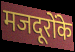
मजदूरोंके